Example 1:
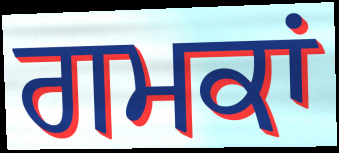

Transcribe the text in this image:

ਗਮਕਾਂ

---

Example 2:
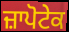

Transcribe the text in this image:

ਜ਼ਾਪੋਟੇਕ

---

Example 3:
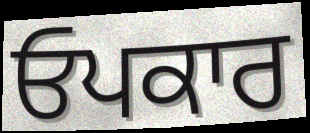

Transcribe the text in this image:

ਓਪਕਾਰ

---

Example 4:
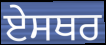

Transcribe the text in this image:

ਏਸਥਰ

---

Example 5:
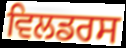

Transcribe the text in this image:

ਵਿਲਡਰਸ